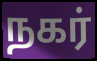
நகர்